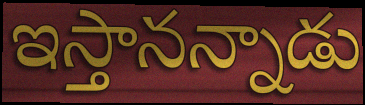
ఇస్తానన్నాడు